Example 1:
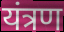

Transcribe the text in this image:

यंत्रण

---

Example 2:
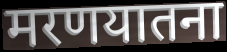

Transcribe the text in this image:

मरणयातना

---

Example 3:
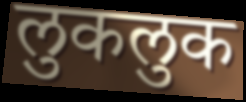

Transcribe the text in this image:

लुकलुक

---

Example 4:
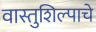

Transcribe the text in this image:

वास्तुशिल्पाचे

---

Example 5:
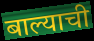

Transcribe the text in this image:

बाल्याची